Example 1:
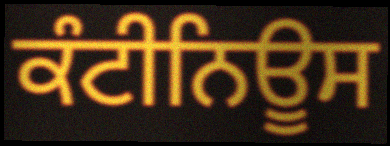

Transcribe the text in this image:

ਕੰਟੀਨਿਊਸ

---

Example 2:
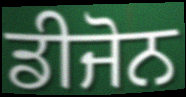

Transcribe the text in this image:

ਡੀਜੋਨ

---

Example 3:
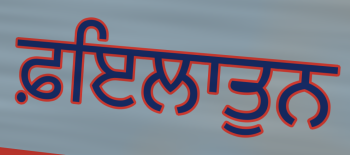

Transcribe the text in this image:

ਫ਼ਇਲਾਤੁਨ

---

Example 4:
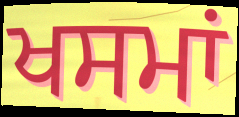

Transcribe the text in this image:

ਖਸਮਾਂ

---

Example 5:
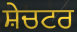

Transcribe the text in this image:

ਸ਼ੇਚਟਰ